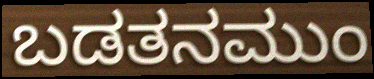
ಬಡತನಮುಂ